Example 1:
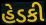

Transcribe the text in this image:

હેડકી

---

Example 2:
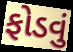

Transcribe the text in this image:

ફોડવું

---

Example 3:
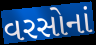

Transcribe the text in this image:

વરસોનાં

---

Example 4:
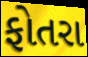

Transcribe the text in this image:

ફોતરા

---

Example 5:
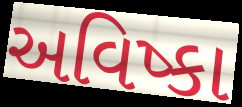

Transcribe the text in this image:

અવિષ્કા